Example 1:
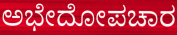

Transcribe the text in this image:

ಅಭೇದೋಪಚಾರ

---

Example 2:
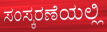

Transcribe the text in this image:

ಸಂಸ್ಕರಣೆಯಲ್ಲಿ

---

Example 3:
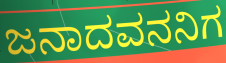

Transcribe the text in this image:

ಜನಾದವನನಿಗ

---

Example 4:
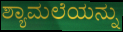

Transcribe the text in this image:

ಶ್ಯಾಮಲೆಯನ್ನು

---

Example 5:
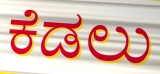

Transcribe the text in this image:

ಕೆಡಲು